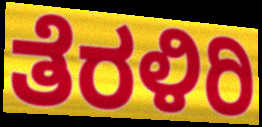
ತೆರಳಿರಿ